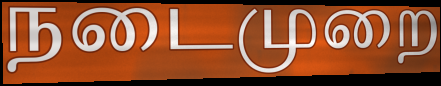
நடைமுறை